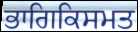
ਭਾਗਿਕਿਸਮਤ